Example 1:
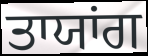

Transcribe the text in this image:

ਤਾਯਾਂਗ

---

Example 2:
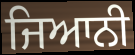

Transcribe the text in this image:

ਜਿਆਨੀ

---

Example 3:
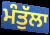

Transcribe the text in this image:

ਮੰਤੁੱਲਾ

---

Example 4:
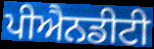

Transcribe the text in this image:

ਪੀਐਨਡੀਟੀ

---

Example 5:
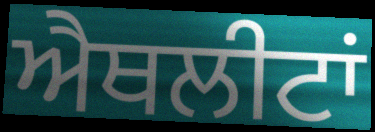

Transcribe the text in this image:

ਐਥਲੀਟਾਂ